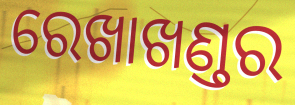
ରେଖାଖଣ୍ଡର